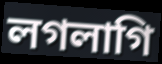
লগলাগি